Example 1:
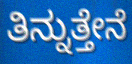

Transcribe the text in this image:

ತಿನ್ನುತ್ತೇನೆ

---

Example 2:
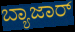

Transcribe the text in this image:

ಬ್ಯಾಜಾರ್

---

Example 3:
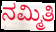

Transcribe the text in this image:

ನಮ್ಮಿತಿ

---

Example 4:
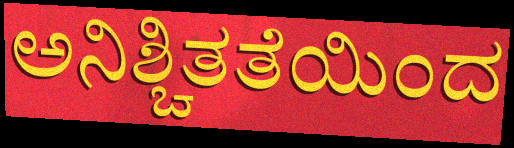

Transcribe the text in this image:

ಅನಿಶ್ಚಿತತೆಯಿಂದ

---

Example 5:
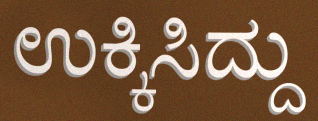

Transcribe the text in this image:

ಉಕ್ಕಿಸಿದ್ದು